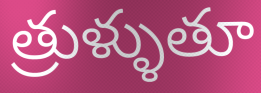
త్రుళ్ళుతూ